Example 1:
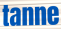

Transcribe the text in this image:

tanne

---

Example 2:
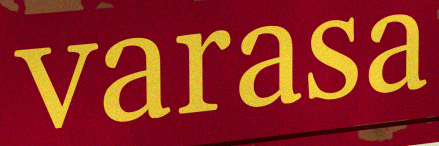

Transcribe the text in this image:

varasa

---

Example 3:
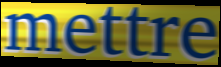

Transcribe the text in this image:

mettre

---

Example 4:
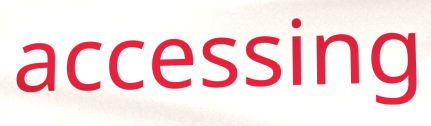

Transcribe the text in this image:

accessing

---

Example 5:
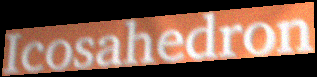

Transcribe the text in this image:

Icosahedron